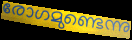
രോഗമുണ്ടെന്നു